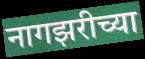
नागझरीच्या